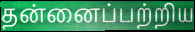
தன்னைப்பற்றிய